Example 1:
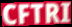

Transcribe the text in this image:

CFTRI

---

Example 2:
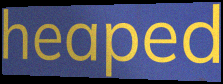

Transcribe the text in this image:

heaped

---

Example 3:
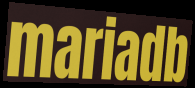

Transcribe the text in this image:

mariadb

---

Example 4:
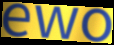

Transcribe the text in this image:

ewo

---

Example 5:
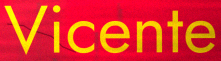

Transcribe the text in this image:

Vicente